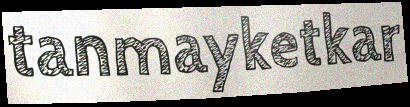
tanmayketkar